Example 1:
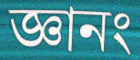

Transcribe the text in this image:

জ্ঞানং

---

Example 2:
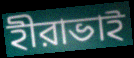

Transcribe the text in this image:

হীরাভাই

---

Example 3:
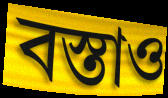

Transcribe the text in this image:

বস্তাও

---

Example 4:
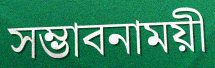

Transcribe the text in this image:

সম্ভাবনাময়ী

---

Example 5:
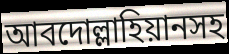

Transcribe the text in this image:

আবদোল্লাহিয়ানসহ